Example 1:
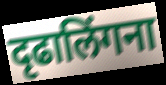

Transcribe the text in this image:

दृढालिंगना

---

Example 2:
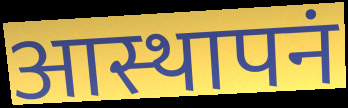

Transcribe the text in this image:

आस्थापनं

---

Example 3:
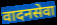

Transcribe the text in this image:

वादनसेवा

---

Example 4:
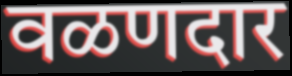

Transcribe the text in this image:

वळणदार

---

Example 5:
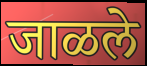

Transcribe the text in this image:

जाळले